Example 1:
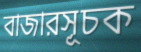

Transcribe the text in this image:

বাজারসূচক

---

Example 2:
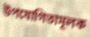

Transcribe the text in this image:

উপযোগিতামূলক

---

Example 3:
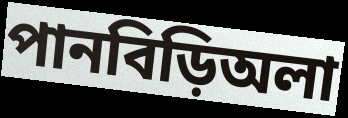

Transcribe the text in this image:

পানবিড়িঅলা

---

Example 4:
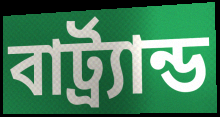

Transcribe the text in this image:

বার্ট্র্যান্ড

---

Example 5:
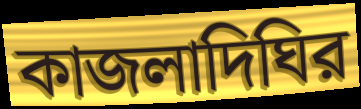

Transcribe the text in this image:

কাজলাদিঘির